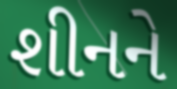
શીનને